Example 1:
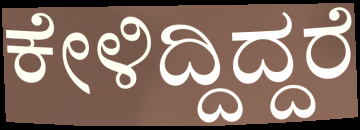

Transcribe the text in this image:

ಕೇಳಿದ್ದಿದ್ದರೆ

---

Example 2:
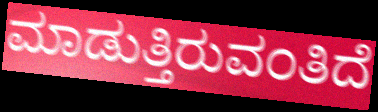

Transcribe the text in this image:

ಮಾಡುತ್ತಿರುವಂತಿದೆ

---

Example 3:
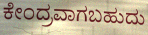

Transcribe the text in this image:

ಕೇಂದ್ರವಾಗಬಹುದು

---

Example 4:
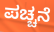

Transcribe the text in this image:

ಪಚ್ಚನೆ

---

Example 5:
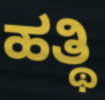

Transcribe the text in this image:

ಹತ್ಥಿ